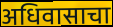
अधिवासाचा